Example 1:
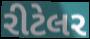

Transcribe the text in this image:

રીટેલર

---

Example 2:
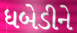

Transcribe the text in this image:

ધબેડીને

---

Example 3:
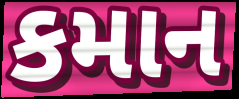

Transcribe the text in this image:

કમાન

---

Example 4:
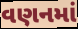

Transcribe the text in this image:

વણનમાં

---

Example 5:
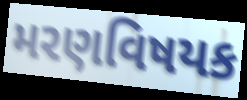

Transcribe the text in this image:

મરણવિષયક